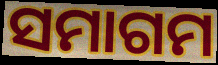
ସମାଗମ